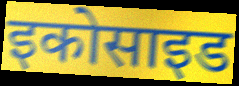
इकोसाइड